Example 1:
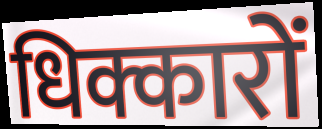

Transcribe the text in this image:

धिक्कारों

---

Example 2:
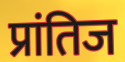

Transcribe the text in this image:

प्रांतिज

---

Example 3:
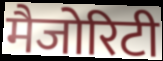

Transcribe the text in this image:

मैजोरिटी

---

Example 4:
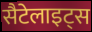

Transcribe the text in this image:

सैटेलाइट्स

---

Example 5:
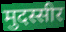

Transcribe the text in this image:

मुदस्सीर